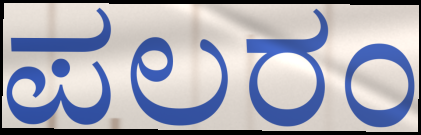
ಪಲರಂ